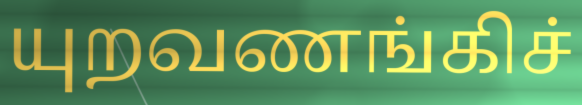
யுறவணங்கிச்